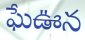
ఘేఊన